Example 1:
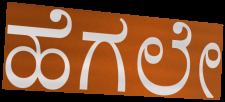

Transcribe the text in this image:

ಹೆಗಲೇ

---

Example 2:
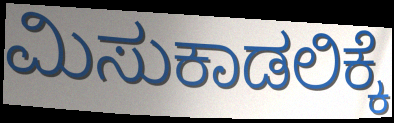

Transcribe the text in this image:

ಮಿಸುಕಾಡಲಿಕ್ಕೆ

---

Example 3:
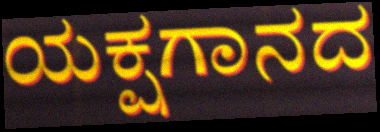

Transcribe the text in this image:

ಯಕ್ಷಗಾನದ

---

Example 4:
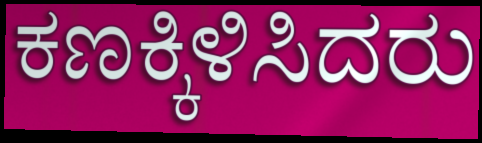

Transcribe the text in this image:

ಕಣಕ್ಕಿಳಿಸಿದರು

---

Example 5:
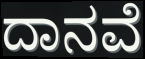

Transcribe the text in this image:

ದಾನವೆ